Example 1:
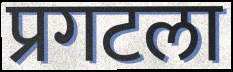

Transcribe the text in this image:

प्रगटला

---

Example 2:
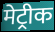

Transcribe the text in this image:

मेट्रीक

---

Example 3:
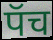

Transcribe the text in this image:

पॅच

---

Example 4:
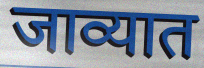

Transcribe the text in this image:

जाव्यात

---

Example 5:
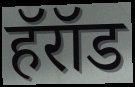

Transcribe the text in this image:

हॅरॉड